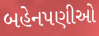
બહેનપણીઓ